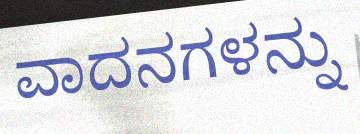
ವಾದನಗಳನ್ನು